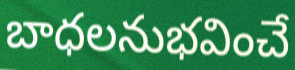
బాధలనుభవించే